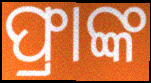
ଫ୍ରାଙ୍କ